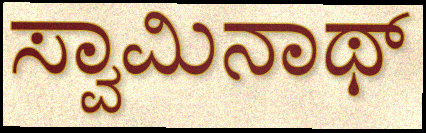
ಸ್ವಾಮಿನಾಥ್